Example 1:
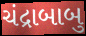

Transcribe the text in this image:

ચંદ્રાબાબુ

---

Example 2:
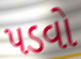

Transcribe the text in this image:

પડવો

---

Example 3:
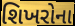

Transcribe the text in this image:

શિખરોના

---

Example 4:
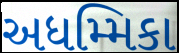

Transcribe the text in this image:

અધમ્મિકા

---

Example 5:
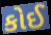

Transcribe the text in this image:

કોઈ